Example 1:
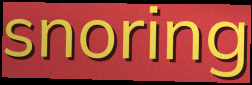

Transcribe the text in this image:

snoring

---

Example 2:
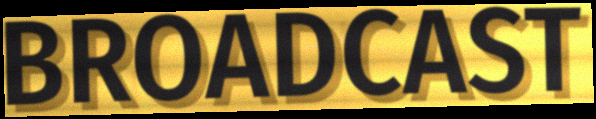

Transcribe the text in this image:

BROADCAST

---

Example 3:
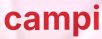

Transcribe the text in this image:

campi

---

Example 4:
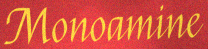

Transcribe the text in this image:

Monoamine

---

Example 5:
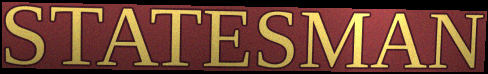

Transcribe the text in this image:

STATESMAN